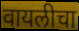
वायलीचा